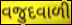
વજુદવાળી